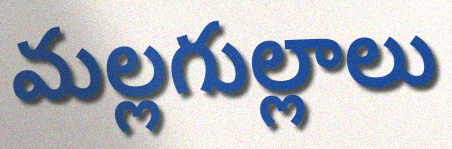
మల్లగుల్లాలు